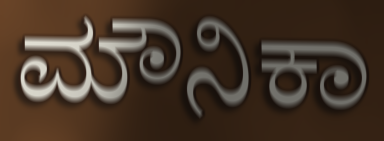
ಮೌನಿಕಾ